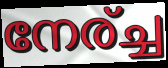
നേര്ച്ച